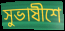
সুভাষীশে